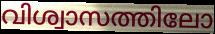
വിശ്വാസത്തിലോ